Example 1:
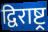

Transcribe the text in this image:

द्विराष्ट्र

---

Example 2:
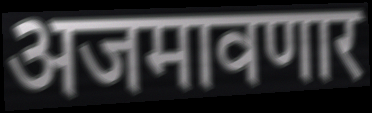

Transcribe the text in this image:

अजमावणार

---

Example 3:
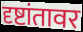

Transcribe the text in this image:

दृष्टांतावर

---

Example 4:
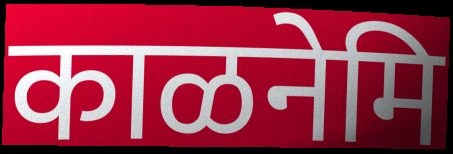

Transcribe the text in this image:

काळनेमि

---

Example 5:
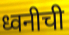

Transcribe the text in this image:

ध्वनीची